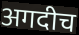
अगदीच